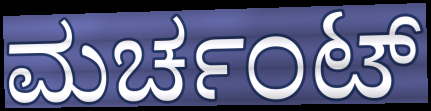
ಮರ್ಚಂಟ್